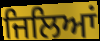
ਜਿਲਿਆਂ